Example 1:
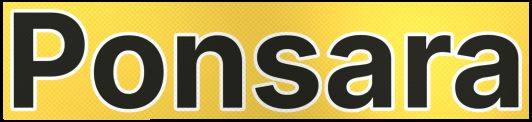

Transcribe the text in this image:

Ponsara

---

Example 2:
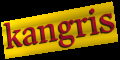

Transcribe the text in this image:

kangris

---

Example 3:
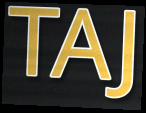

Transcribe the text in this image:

TAJ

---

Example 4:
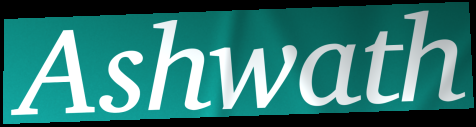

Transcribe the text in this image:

Ashwath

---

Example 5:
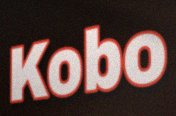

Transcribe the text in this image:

Kobo